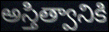
అస్తిత్వానికి